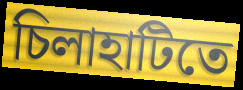
চিলাহাটিতে